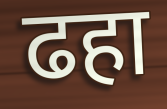
ढहा